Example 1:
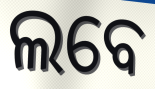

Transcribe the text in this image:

ଲବେ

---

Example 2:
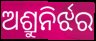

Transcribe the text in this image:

ଅଶ୍ରୁନିର୍ଝର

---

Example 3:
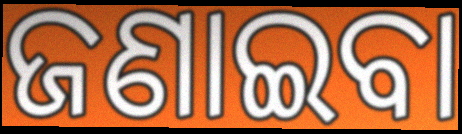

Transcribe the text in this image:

ଜଣାଇବା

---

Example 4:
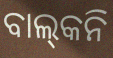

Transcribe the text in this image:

ବାଲ୍‍କନି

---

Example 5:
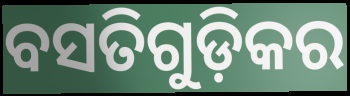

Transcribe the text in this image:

ବସତିଗୁଡ଼ିକର